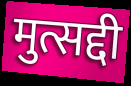
मुत्सद्दी